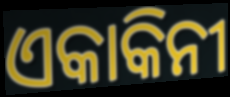
ଏକାକିନୀ